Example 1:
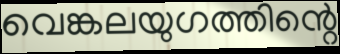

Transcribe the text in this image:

വെങ്കലയുഗത്തിന്റെ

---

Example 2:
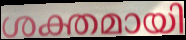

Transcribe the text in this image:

ശക്തമായി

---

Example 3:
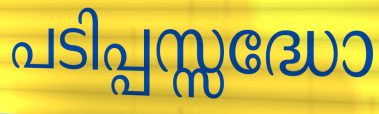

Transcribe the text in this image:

പടിപ്പസ്സദ്ധോ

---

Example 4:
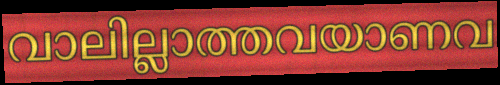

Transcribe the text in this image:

വാലില്ലാത്തവയാണവ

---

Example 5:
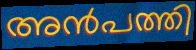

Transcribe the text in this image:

അൻപത്തി